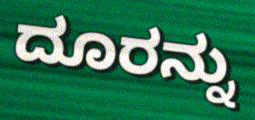
ದೂರನ್ನು